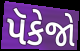
પૅકેજો